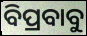
ବିପ୍ରବାବୁ